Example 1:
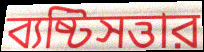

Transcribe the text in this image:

ব্যষ্টিসত্তার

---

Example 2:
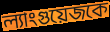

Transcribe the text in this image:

ল্যাংগুয়েজকে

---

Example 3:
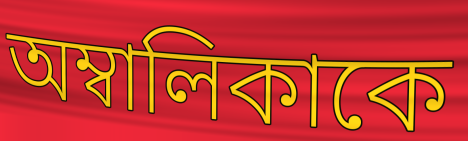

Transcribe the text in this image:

অম্বালিকাকে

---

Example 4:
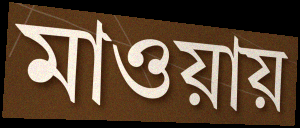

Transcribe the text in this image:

মাওয়ায়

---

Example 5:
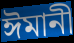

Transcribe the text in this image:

ঈমানী